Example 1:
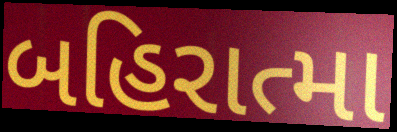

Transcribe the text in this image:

બહિરાત્મા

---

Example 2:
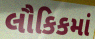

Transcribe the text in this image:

લૌકિકમાં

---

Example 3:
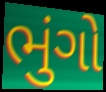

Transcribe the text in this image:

ભુંગો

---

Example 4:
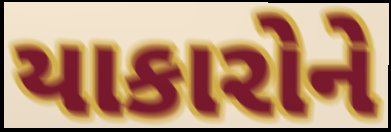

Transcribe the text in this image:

યાકારોને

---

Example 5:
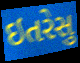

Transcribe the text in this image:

ઇતરેસુ